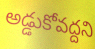
అడ్డుకోవద్దని